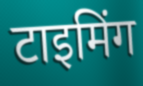
टाइमिंग